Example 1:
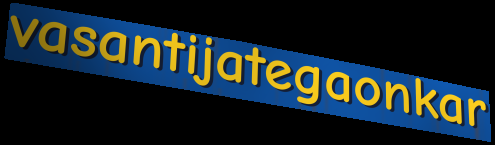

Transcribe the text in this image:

vasantijategaonkar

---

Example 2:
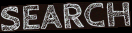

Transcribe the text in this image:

SEARCH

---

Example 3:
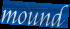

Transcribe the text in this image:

mound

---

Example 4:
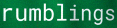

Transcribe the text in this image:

rumblings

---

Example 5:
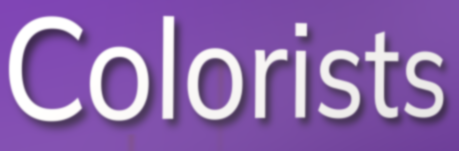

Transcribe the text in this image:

Colorists